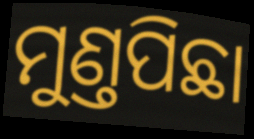
ମୁଣ୍ତପିଛା